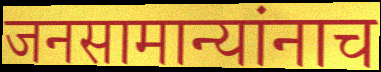
जनसामान्यांनाच